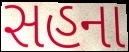
સહના